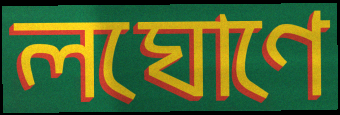
লঘোণে